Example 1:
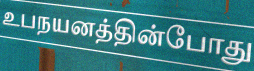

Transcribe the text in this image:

உபநயனத்தின்போது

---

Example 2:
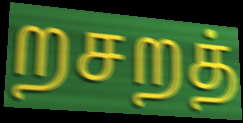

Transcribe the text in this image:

றசறத்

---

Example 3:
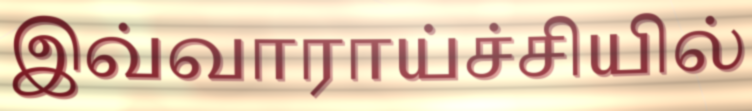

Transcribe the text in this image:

இவ்வாராய்ச்சியில்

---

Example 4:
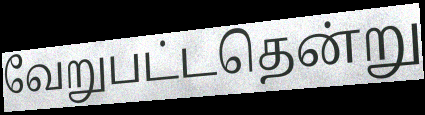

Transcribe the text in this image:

வேறுபட்டதென்று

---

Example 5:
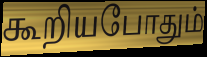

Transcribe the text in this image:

கூறியபோதும்